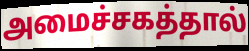
அமைச்சகத்தால்